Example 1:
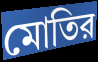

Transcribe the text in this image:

মোতির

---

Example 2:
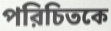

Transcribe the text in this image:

পরিচিতকে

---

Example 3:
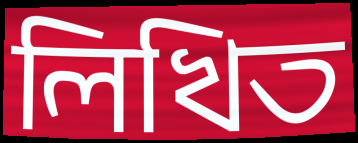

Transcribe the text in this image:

লিখিত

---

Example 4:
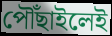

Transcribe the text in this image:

পৌঁছাইলেই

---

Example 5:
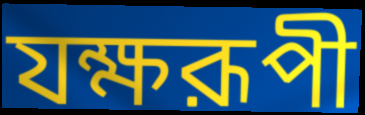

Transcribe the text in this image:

যক্ষরূপী